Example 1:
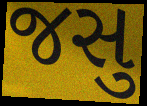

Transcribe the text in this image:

જસુ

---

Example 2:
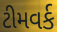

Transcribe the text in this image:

ટીમવર્ક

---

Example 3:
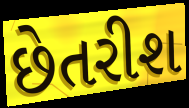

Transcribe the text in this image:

છેતરીશ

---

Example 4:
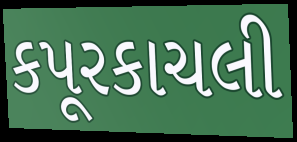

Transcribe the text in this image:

કપૂરકાચલી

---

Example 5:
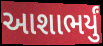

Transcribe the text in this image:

આશાભર્યું